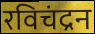
रविचंद्रन